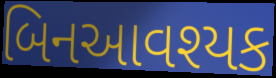
બિનઆવશ્યક